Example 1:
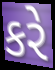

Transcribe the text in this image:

કરે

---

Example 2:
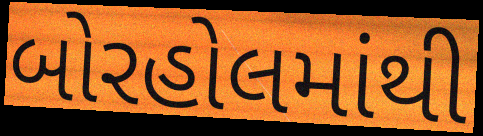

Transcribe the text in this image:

બોરહોલમાંથી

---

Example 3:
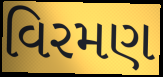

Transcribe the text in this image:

વિરમણ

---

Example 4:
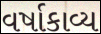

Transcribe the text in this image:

વર્ષાકાવ્ય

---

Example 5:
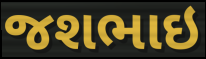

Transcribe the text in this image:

જશભાઇ